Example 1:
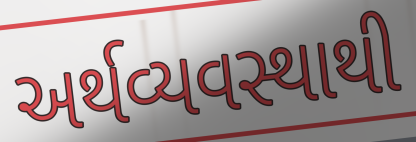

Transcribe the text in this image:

અર્થવ્યવસ્થાથી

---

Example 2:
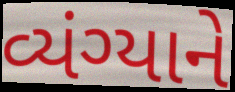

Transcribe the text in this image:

વ્યંગ્યાને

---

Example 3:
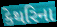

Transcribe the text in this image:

કેથરિના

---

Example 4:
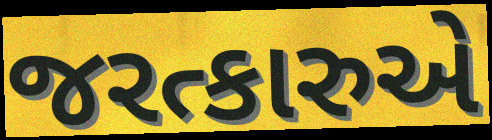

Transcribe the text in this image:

જરત્કારુએ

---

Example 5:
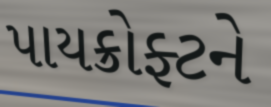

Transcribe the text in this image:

પાયક્રોફ્ટને